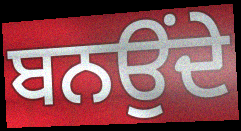
ਬਨਉਂਦੇ